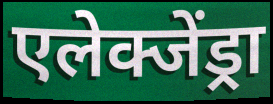
एलेक्जेंड्रा